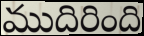
ముదిరింది